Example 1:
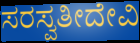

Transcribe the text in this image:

ಸರಸ್ವತೀದೇವಿ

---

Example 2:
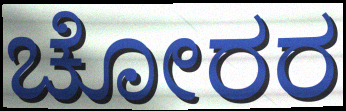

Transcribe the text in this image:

ಚೋರರ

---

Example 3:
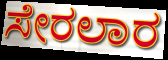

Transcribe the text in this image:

ಸೇರಲಾರ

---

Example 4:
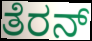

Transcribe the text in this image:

ತೆರನ್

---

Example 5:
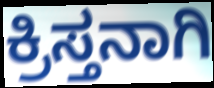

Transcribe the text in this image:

ಕ್ರಿಸ್ತನಾಗಿ